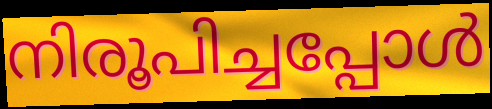
നിരൂപിച്ചപ്പോൾ